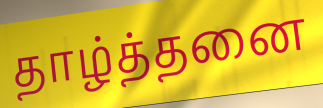
தாழ்த்தனை